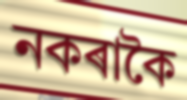
নকৰাকৈ